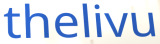
thelivu